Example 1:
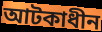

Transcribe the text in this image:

আটকাধীন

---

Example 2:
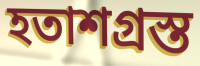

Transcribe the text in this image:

হতাশগ্ৰস্ত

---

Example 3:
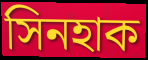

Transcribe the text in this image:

সিনহাক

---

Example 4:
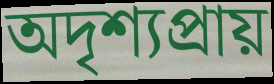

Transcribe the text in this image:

অদৃশ্যপ্ৰায়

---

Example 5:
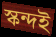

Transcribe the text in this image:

স্কন্দই